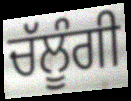
ਚੱਲੂੰਗੀ